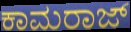
ಕಾಮರಾಜ್